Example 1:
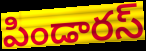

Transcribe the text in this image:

పిండారస్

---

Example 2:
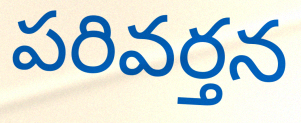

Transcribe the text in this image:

పరివర్తన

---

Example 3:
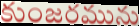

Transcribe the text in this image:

కుంజరమును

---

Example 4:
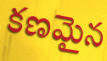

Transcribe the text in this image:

కణమైన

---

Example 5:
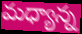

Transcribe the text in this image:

మధ్యాన్న